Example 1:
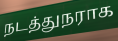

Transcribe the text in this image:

நடத்துநராக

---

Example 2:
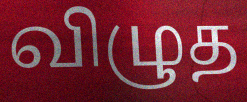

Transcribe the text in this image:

விழுத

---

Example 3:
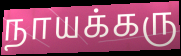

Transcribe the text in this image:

நாயக்கரு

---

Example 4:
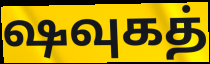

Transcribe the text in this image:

ஷவுகத்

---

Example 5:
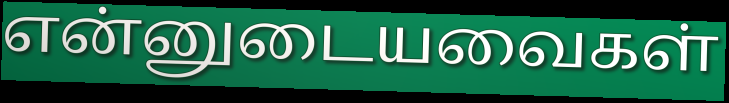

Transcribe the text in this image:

என்னுடையவைகள்